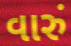
વારું